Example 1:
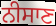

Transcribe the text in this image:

ਨੀਸਾਣ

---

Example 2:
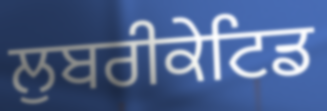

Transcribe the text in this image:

ਲੁਬਰੀਕੇਟਿਡ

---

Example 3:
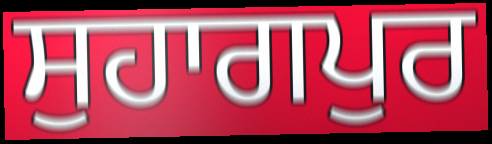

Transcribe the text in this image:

ਸੁਹਾਗਪੁਰ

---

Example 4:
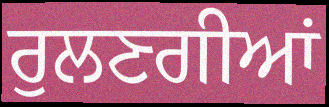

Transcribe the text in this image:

ਰੁਲਣਗੀਆਂ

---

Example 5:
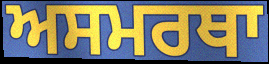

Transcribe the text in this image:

ਅਸਮਰਥਾ